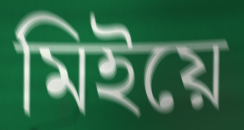
মিইয়ে